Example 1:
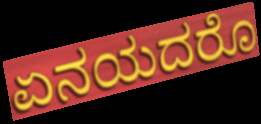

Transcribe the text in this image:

ಏನಯದರೊ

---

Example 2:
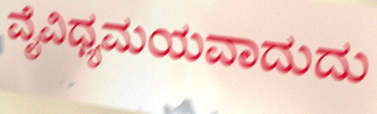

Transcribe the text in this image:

ವೈವಿಧ್ಯಮಯವಾದುದು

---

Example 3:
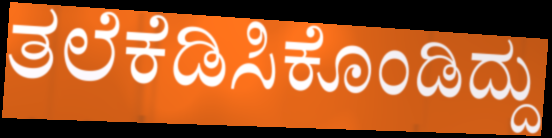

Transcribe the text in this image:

ತಲೆಕೆಡಿಸಿಕೊಂಡಿದ್ದು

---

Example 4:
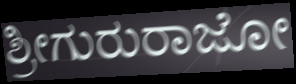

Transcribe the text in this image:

ಶ್ರೀಗುರುರಾಜೋ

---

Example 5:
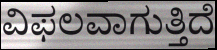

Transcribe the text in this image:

ವಿಫಲವಾಗುತ್ತಿದೆ